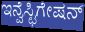
ಇನ್ವೆಸ್ಟಿಗೇಷನ್